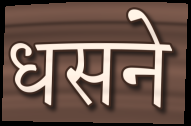
धसने